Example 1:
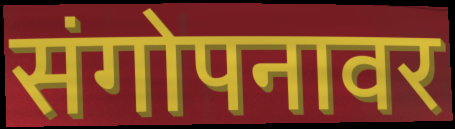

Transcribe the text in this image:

संगोपनावर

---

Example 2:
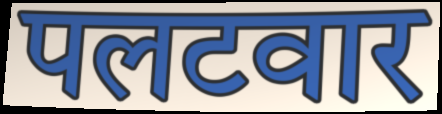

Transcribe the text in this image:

पलटवार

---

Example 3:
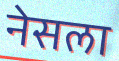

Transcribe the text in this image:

नेसला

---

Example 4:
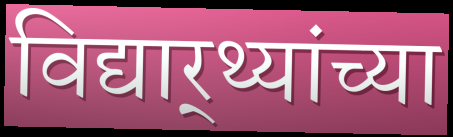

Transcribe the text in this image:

विद्यार्थ्यांच्या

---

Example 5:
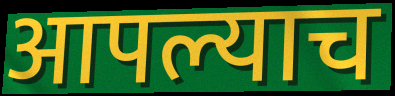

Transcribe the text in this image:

आपल्याच